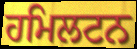
ਹਮਿਲਟਨ